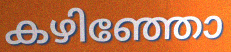
കഴിഞ്ഞോ